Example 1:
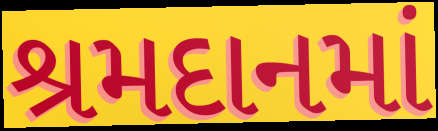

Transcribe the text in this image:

શ્રમદાનમાં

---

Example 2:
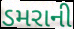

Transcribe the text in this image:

ડમરાની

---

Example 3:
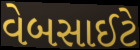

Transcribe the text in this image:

વેબસાઈટે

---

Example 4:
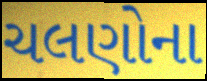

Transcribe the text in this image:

ચલણોના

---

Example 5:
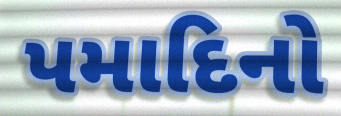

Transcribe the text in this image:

પમાદિનો